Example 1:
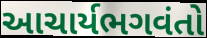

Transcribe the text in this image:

આચાર્યભગવંતો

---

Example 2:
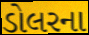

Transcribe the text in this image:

ડોલરના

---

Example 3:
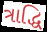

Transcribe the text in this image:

ત્રાદ્ધિ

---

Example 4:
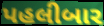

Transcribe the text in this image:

પહલીબાર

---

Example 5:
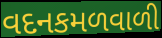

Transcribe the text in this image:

વદનકમળવાળી